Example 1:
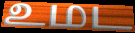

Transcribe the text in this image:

உமட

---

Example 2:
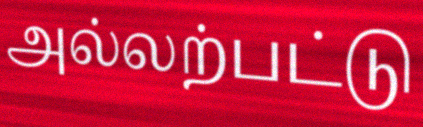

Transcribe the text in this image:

அல்லற்பட்டு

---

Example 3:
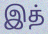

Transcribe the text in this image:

இத்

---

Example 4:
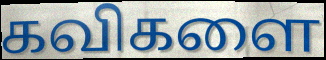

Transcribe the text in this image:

கவிகளை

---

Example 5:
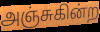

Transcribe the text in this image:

அஞ்சுகின்ற